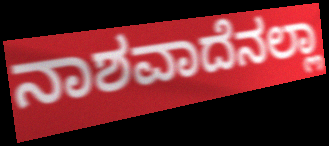
ನಾಶವಾದೆನಲ್ಲಾ